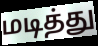
மடித்து